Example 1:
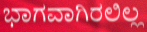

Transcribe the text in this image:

ಭಾಗವಾಗಿರಲಿಲ್ಲ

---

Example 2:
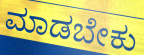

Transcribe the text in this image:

ಮಾಡಬೇಕು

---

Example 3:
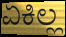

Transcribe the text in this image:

ಏಕಿಲ್ಲ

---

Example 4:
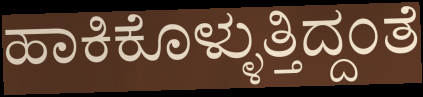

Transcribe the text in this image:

ಹಾಕಿಕೊಳ್ಳುತ್ತಿದ್ದಂತೆ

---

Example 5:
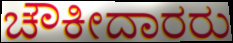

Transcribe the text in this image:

ಚೌಕೀದಾರರು